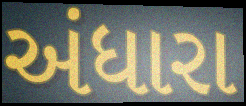
અંધારા